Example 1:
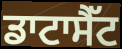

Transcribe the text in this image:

ਡਾਟਾਸੈੱਟ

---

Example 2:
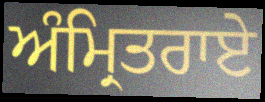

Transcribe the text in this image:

ਅੰਮ੍ਰਿਤਰਾਏ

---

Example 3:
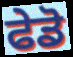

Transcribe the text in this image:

ਫੇਡੋ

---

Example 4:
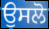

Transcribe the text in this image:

ਉਸਲੋ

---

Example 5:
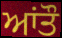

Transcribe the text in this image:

ਆਂਤੌ